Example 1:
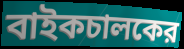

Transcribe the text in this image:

বাইকচালকের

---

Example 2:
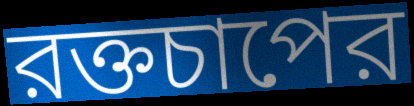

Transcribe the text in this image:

রক্তচাপের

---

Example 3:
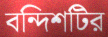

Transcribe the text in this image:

বন্দিশটির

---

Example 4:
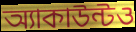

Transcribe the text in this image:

অ্যাকাউন্টও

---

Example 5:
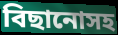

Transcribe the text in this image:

বিছানোসহ